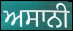
ਅਸਾਨੀ